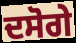
ਦਸੋਗੇ